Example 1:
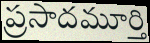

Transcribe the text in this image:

ప్రసాదమూర్తి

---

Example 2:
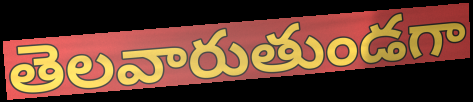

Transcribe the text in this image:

తెలవారుతుండగా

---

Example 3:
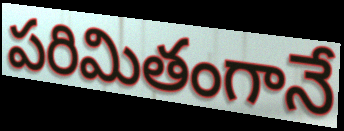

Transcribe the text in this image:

పరిమితంగానే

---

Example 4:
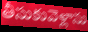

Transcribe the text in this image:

తీసుకువెళ్లాను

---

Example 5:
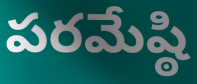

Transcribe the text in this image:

పరమేష్ఠి